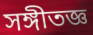
সঙ্গীতজ্ঞ